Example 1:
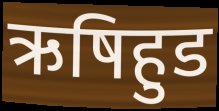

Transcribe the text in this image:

ऋषिहुड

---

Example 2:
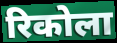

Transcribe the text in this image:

रिकोला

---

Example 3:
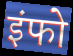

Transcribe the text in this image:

इंफो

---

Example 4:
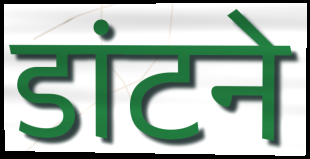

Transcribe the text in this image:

डांटने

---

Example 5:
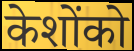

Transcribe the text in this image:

केशोंको